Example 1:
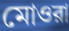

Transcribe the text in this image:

মোওরা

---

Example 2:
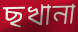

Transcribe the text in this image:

ছখানা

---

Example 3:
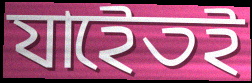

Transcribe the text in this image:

যাইেতই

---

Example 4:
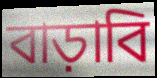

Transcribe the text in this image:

বাড়াবি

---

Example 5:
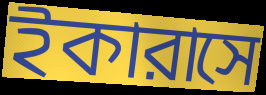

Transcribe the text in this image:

ইকারাসে